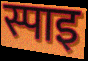
स्पाइ